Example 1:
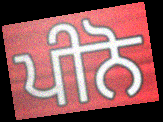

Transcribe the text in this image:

ਪੀਨੋ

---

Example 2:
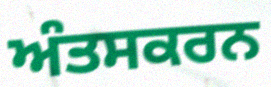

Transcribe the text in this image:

ਅੰਤਸਕਰਨ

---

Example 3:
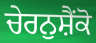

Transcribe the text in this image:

ਚੇਰਨੁਸ਼ੈਂਕੋ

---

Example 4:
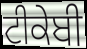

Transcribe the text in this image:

ਟੀਕੇਬੀ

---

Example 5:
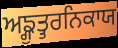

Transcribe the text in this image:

ਅਙ੍ਗੁਤ੍ਤਰਨਿਕਾਯ